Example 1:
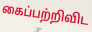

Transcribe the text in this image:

கைப்பற்றிவிட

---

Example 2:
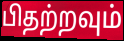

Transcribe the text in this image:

பிதற்றவும்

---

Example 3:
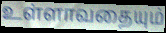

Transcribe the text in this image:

உள்ளாவதையும்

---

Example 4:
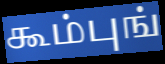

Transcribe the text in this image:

கூம்புங்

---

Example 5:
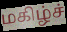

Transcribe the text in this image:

மகிழ்ச்